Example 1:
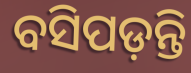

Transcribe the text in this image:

ବସିପଡ଼ନ୍ତି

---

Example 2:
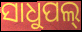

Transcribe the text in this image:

ସାଧୁପଲ୍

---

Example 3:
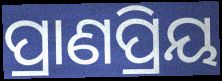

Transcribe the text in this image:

ପ୍ରାଣପ୍ରିୟ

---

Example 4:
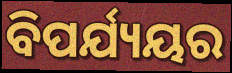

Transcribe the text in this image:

ବିପର୍ଯ୍ୟୟର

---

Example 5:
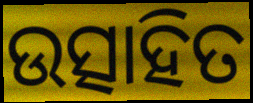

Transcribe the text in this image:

ଉତ୍ସାହିତ